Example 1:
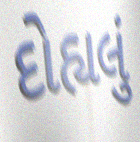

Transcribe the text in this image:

દોહ્યલું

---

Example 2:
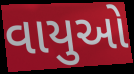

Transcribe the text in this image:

વાયુઓ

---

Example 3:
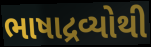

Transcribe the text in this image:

ભાષાદ્રવ્યોથી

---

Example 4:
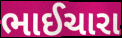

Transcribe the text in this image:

ભાઈચારા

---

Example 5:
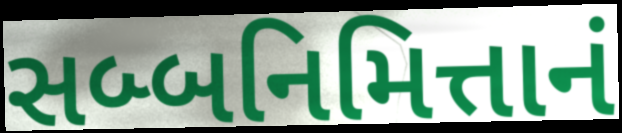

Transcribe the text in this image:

સબ્બનિમિત્તાનં